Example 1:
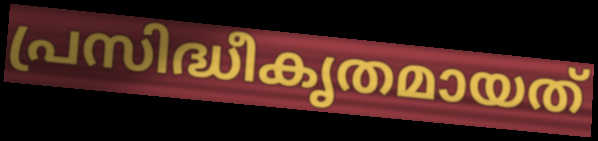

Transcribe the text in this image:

പ്രസിദ്ധീകൃതമായത്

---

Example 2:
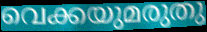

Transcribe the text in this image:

വെക്കയുമരുതു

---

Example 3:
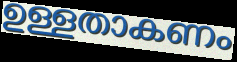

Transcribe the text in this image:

ഉള്ളതാകണം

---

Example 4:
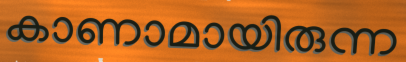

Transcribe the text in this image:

കാണാമായിരുന്ന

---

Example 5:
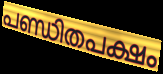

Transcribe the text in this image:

പണ്ഡിതപക്ഷം